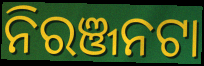
ନିରଞ୍ଜନଟା